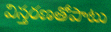
విస్తరణతోపాటు